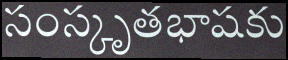
సంస్కృతభాషకు